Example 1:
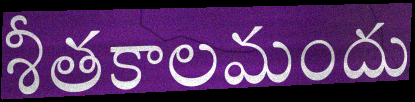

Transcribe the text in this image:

శీతకాలమందు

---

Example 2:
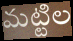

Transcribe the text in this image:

మట్టిల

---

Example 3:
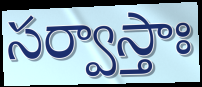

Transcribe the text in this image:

సర్వాస్తాః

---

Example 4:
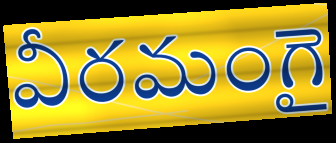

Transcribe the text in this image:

వీరమంగై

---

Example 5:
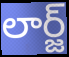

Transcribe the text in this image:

లార్జ్